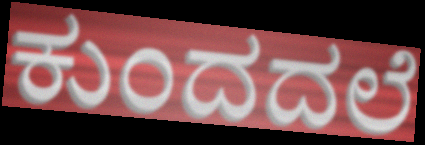
ಕುಂದದಲೆ